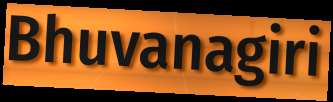
Bhuvanagiri